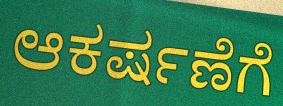
ಆಕರ್ಷಣೆಗೆ